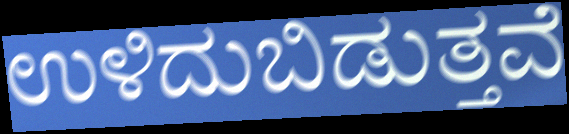
ಉಳಿದುಬಿಡುತ್ತವೆ